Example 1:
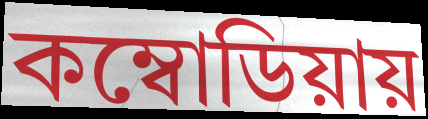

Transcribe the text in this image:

কম্বোডিয়ায়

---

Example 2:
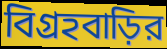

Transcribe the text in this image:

বিগ্রহবাড়ির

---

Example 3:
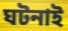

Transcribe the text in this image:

ঘটনাই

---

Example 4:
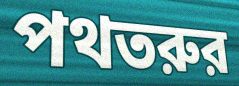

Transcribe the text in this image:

পথতরুর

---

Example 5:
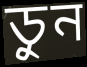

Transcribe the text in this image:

ডুন